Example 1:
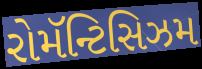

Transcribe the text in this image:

રોમૅન્ટિસિઝમ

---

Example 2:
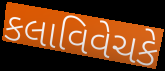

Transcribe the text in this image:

કલાવિવેચકે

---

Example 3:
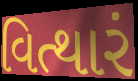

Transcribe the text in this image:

વિત્થારં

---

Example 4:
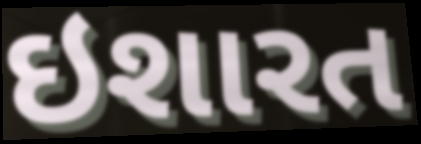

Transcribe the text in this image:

ઇશારત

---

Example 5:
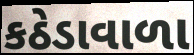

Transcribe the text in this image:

કઠેડાવાળા